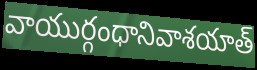
వాయుర్గంధానివాశయాత్